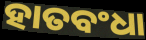
ହାତବଂଧା